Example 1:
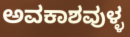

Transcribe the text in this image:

ಅವಕಾಶವುಳ್ಳ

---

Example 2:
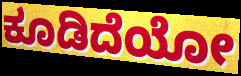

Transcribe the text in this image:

ಕೂಡಿದೆಯೋ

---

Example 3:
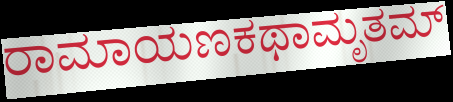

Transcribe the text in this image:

ರಾಮಾಯಣಕಥಾಮೃತಮ್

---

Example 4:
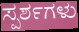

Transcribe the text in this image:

ಸ್ಪರ್ಶಗಳು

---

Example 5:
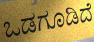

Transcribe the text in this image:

ಒಡಗೂಡಿದೆ